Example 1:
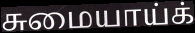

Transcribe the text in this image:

சுமையாய்க்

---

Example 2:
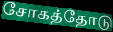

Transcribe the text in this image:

சோகத்தோடு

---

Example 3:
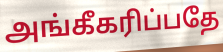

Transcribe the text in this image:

அங்கீகரிப்பதே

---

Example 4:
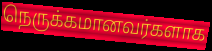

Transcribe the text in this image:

நெருக்கமானவர்களாக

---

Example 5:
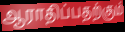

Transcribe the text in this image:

ஆராதிப்பதற்கும்